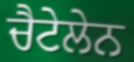
ਚੈਟੇਲੇਨ